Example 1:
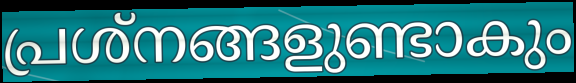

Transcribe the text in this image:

പ്രശ്നങ്ങളുണ്ടാകും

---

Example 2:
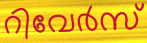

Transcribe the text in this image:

റിവേർസ്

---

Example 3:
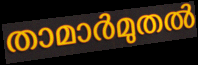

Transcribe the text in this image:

താമാർമുതൽ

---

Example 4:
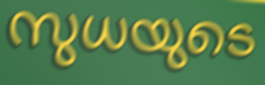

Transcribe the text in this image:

സുധയുടെ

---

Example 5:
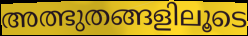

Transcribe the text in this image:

അത്ഭുതങ്ങളിലൂടെ